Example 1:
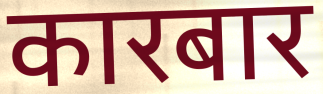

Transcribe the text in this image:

कारबार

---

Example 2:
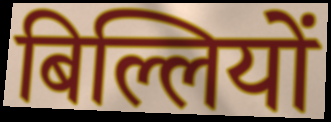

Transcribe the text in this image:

बिल्लियों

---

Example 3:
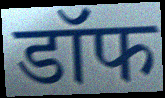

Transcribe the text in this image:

डॉफ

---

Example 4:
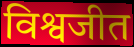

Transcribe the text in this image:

विश्वजीत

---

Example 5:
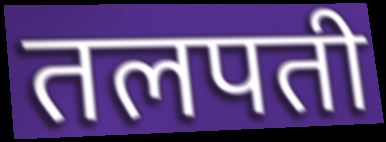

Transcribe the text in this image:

तलपती